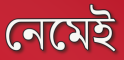
নেমেই